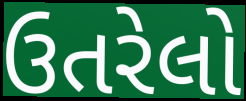
ઉતરેલો